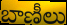
బాణీలు